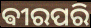
ଵୀରପରି